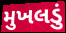
મુખલડું